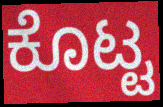
ಕೊಟ್ಟ